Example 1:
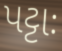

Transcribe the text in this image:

પટ્ટાઃ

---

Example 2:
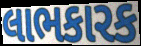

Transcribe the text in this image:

લાભકારક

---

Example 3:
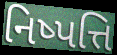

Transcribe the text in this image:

નિષ્પત્તિ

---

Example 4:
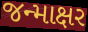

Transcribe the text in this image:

જન્માક્ષર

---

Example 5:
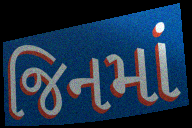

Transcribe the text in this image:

જિનમાં